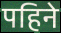
पहिने